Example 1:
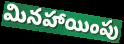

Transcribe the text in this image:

మినహాయింపు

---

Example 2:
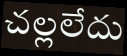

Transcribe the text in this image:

చల్లలేదు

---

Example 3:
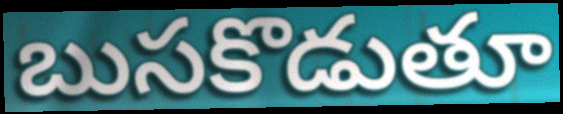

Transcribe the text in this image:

బుసకొడుతూ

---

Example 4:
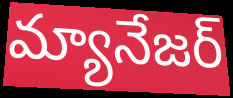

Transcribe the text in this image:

మ్యానేజర్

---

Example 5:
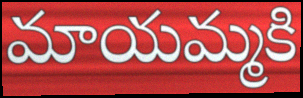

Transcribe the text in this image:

మాయమ్మకి